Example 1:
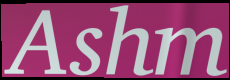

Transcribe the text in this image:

Ashm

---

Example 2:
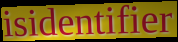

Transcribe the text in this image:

isidentifier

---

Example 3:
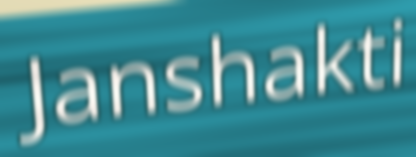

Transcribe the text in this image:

Janshakti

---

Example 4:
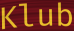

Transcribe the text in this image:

Klub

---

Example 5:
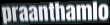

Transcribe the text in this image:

praanthamlo